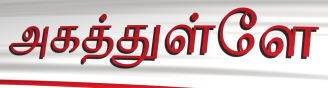
அகத்துள்ளே